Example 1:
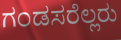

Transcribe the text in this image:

ಗಂಡಸರೆಲ್ಲರು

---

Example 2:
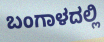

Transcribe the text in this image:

ಬಂಗಾಳದಲ್ಲಿ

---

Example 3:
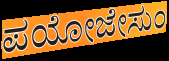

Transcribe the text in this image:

ಪಯೋಜೇಸುಂ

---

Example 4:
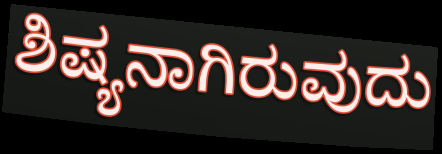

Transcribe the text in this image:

ಶಿಷ್ಯನಾಗಿರುವುದು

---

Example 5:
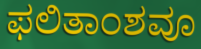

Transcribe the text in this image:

ಫಲಿತಾಂಶವೂ